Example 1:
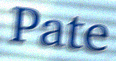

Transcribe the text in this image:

Pate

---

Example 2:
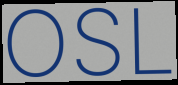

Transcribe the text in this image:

OSL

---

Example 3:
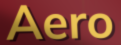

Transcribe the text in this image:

Aero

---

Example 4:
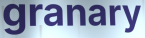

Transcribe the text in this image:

granary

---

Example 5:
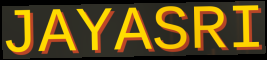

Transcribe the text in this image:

JAYASRI